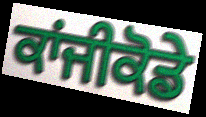
ਕਾਂਜੀਕੋਡੇ